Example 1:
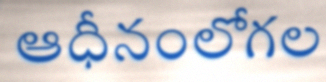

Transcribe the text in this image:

ఆధీనంలోగల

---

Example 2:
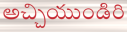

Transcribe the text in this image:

అచ్చియుండిరి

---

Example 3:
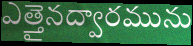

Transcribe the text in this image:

ఎత్తైనద్వారమును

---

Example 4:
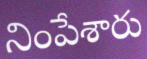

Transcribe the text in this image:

నింపేశారు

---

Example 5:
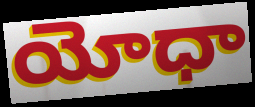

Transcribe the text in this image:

యోధా